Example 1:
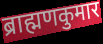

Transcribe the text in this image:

ब्राह्मणकुमार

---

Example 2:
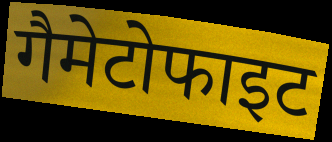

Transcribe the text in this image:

गैमेटोफाइट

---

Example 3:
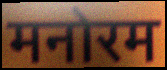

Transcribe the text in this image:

मनोरम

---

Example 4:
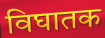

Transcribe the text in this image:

विघातक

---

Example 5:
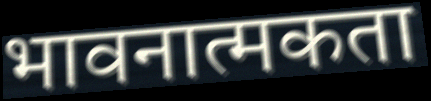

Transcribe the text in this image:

भावनात्मकता